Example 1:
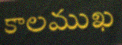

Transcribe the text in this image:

కాలముఖ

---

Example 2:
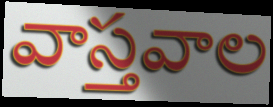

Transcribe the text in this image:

వాస్తవాల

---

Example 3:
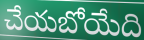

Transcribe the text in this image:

చేయబోయేది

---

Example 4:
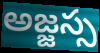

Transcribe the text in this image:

అజ్జస్స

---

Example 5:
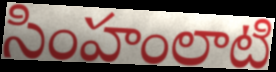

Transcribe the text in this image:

సింహంలాటి